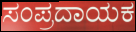
ಸಂಪ್ರದಾಯಕ